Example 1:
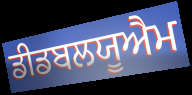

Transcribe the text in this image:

ਡੀਡਬਲਯੂਐਮ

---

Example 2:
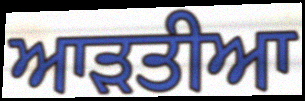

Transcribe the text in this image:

ਆੜਤੀਆ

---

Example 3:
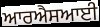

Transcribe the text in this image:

ਆਰਐਸਆਈ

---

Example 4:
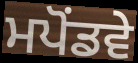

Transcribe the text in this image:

ਮਪੋਂਡਵੇ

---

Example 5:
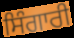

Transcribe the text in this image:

ਸਿੰਗਾਰੀ